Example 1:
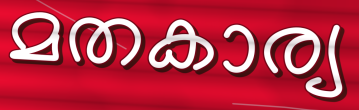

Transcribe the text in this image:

മതകാര്യ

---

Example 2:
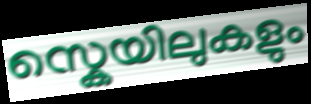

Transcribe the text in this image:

സ്കെയിലുകളും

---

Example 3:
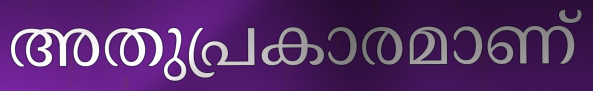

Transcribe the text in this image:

അതുപ്രകാരമാണ്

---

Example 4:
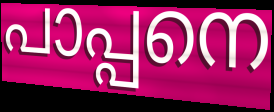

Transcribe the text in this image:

പാപ്പനെ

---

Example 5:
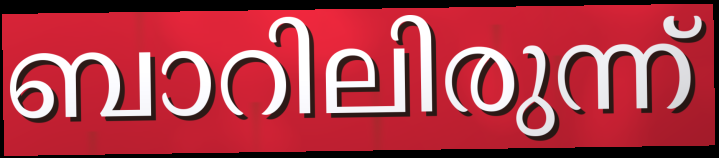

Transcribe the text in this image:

ബാറിലിരുന്ന്